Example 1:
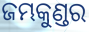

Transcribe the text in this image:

ଜମ୍ଭକୁଣ୍ଡର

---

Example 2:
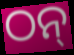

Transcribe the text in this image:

ଠନ୍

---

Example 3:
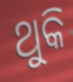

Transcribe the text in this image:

ଥୁକି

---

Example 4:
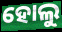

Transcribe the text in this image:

ହୋଲୁ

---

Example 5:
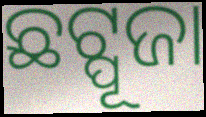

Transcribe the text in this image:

ଛଟ୍ପୂଜା